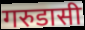
गरुडासी